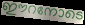
ഈറനോടെ